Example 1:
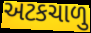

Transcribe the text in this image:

અટકચાળુ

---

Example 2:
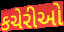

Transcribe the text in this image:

કચેરીઓ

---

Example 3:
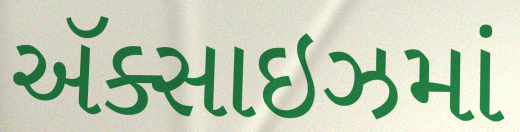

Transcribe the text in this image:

ઍક્સાઇઝમાં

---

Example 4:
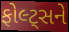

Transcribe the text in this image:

ફોલ્ટ્સને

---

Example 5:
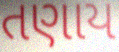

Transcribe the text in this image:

તણાય